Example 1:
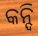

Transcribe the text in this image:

କନ୍ଦି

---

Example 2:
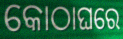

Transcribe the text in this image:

କୋଠାଘରେ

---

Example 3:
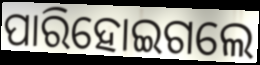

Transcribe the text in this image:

ପାରିହୋଇଗଲେ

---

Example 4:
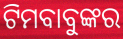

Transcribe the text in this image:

ଟିମବାବୁଙ୍କର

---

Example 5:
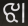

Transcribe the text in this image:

ଝା